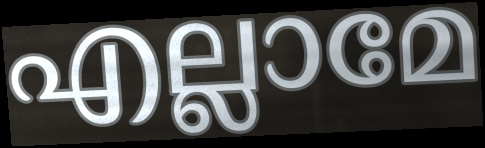
എല്ലാമേ